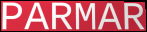
PARMAR